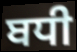
ਬਧੀ